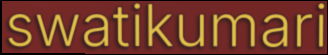
swatikumari